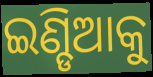
ଇଣ୍ଡିଆକୁ